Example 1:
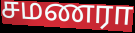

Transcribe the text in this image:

சமணரா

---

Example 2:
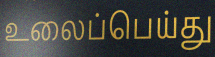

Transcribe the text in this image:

உலைப்பெய்து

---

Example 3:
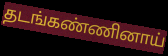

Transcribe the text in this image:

தடங்கண்ணினாய்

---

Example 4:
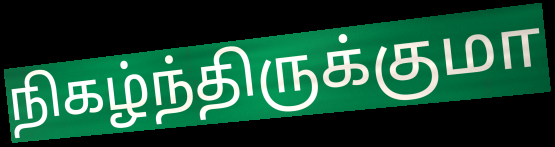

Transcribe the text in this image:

நிகழ்ந்திருக்குமா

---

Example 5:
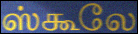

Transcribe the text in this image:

ஸ்கூலே